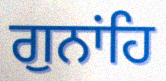
ਗੁਨਾਂਹਿ